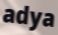
adya